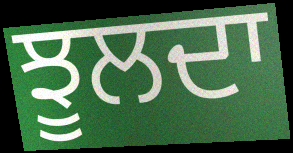
ਝੂਲਦਾ